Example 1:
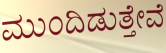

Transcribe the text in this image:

ಮುಂದಿಡುತ್ತೇವೆ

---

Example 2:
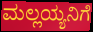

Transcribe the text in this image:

ಮಲ್ಲಯ್ಯನಿಗೆ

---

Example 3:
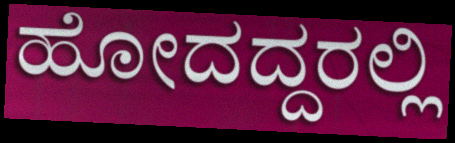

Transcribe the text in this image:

ಹೋದದ್ದರಲ್ಲಿ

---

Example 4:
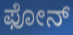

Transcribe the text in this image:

ಫೋನ್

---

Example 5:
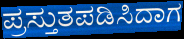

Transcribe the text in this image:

ಪ್ರಸ್ತುತಪಡಿಸಿದಾಗ